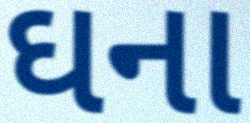
ઘના